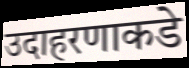
उदाहरणाकडे